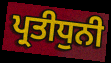
ਪ੍ਰਤੀਧੁਨੀ